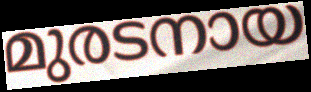
മുരടനായ